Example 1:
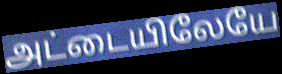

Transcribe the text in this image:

அட்டையிலேயே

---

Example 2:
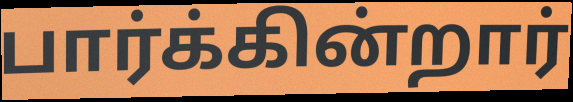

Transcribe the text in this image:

பார்க்கின்றார்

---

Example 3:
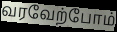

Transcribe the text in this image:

வரவேற்போம்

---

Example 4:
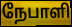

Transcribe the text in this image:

நேபாளி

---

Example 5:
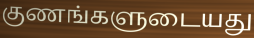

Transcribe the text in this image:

குணங்களுடையது